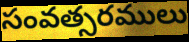
సంవత్సరములు